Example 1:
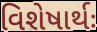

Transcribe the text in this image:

વિશેષાર્થઃ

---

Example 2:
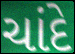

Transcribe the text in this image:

ચાંદે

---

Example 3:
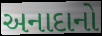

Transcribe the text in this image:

અનાદાનો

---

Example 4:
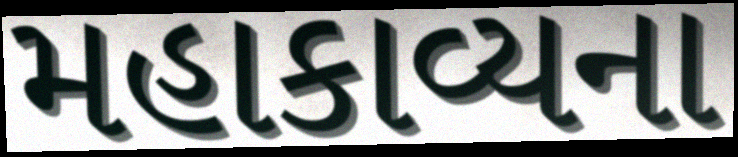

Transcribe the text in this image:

મહાકાવ્યના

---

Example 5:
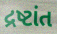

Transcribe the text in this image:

દ્રષ્ટાંત